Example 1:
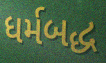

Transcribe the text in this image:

ધર્મબદ્ધ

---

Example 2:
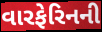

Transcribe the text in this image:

વારફેરિનની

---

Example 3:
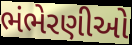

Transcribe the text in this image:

ભંભેરણીઓ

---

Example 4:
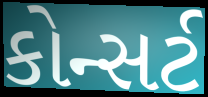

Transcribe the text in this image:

કોન્સર્ટ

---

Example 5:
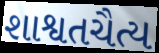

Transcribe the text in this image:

શાશ્વતચૈત્ય